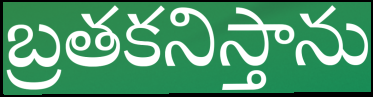
బ్రతకనిస్తాను